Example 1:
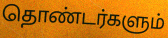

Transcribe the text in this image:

தொண்டர்களும்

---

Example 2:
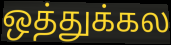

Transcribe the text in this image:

ஒத்துக்கல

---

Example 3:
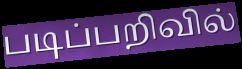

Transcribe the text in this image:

படிப்பறிவில்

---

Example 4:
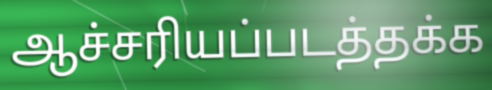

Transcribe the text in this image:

ஆச்சரியப்படத்தக்க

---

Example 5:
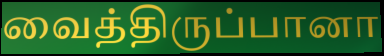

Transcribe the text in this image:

வைத்திருப்பானா